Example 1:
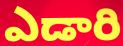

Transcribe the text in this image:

ఎడారి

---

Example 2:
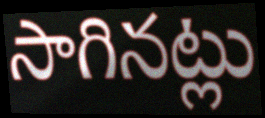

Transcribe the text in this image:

సాగినట్లు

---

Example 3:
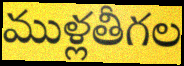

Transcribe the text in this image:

ముళ్లతీగల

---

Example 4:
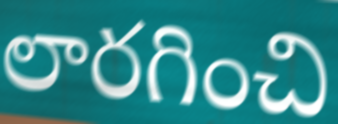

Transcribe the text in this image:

లారగించి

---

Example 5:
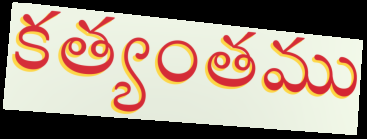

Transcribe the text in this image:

కత్యంతము